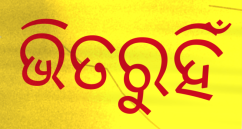
ଭିତରୁହିଁ